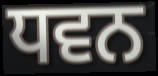
ਧਵਨ